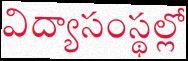
విద్యాసంస్థల్లో